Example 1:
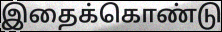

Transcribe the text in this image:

இதைக்கொண்டு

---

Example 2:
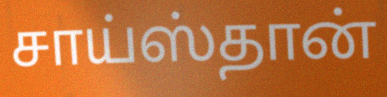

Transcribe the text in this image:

சாய்ஸ்தான்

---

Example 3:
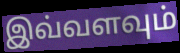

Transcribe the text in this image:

இவ்வளவும்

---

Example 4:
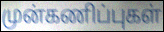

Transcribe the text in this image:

முன்கணிப்புகள்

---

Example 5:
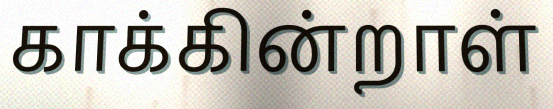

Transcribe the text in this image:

காக்கின்றாள்